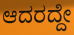
ಆದರದ್ದೇ